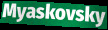
Myaskovsky